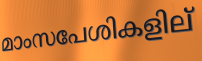
മാംസപേശികളില്